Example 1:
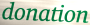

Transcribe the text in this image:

donation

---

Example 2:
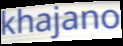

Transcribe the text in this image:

khajano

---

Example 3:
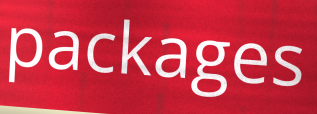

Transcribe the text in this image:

packages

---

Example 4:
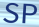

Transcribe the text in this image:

SP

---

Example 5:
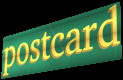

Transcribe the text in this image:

postcard